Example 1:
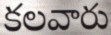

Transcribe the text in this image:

కలవారు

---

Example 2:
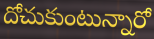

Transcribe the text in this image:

దోచుకుంటున్నారో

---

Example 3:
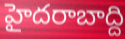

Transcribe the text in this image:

హైదరాబాద్ది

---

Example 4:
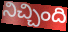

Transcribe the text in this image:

నిచ్చింది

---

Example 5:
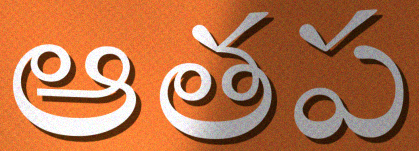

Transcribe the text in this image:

ఆతప